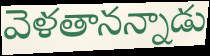
వెళతానన్నాడు